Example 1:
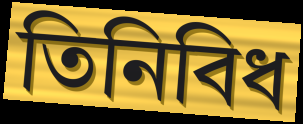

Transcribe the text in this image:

তিনিবিধ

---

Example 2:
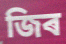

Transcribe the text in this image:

জিৰ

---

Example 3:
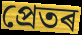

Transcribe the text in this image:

প্ৰেতৰ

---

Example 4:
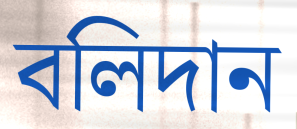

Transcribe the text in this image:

বলিদান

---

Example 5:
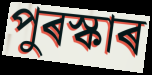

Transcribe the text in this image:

পুৰস্কাৰ